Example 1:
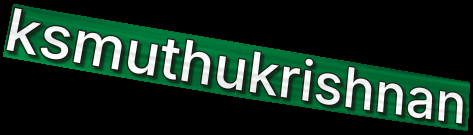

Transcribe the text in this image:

ksmuthukrishnan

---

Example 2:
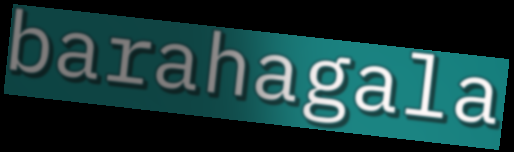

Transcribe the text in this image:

barahagala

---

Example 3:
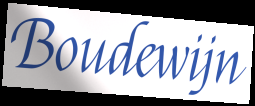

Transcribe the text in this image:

Boudewijn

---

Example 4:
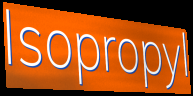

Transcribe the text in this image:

Isopropyl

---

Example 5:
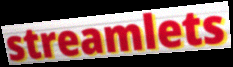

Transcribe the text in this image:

streamlets